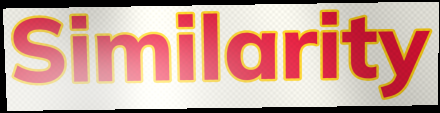
Similarity